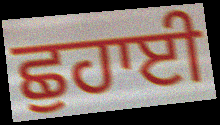
ਛੁਹਾਈ